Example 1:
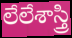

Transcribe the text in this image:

లేలేశాస్త్రి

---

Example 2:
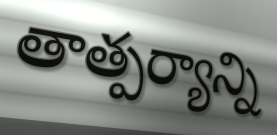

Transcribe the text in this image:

తాత్పర్యాన్ని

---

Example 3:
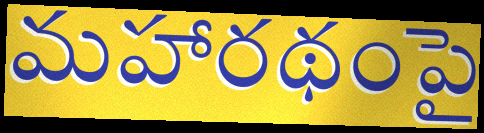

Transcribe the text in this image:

మహారథంపై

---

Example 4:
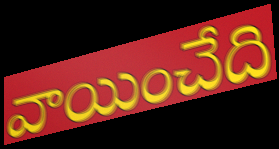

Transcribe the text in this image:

వాయించేది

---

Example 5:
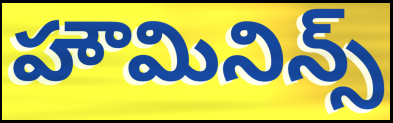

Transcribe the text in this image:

హౌమినిన్స్